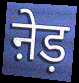
ऩेड़